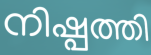
നിഷ്പത്തി